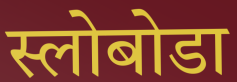
स्लोबोडा